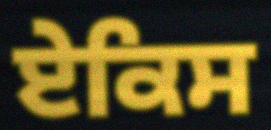
ਏਕਿਸ